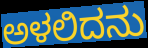
ಅಳಲಿದನು